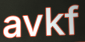
avkf